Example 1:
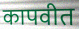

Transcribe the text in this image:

कापवीत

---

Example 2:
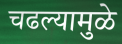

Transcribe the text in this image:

चढल्यामुळे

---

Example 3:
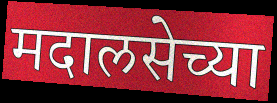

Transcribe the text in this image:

मदालसेच्या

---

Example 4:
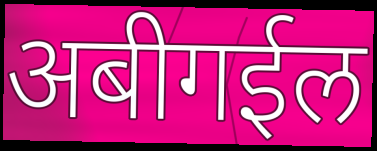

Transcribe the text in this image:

अबीगईल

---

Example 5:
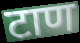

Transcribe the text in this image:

टाण